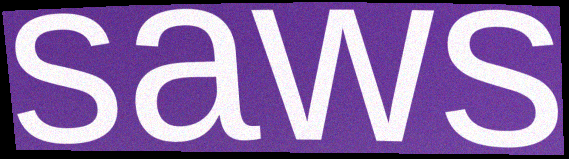
saws